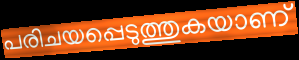
പരിചയപ്പെടുത്തുകയാണ്